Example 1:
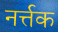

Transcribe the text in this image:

नर्त्तक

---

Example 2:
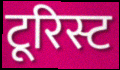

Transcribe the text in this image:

टूरिस्ट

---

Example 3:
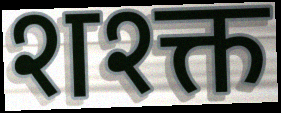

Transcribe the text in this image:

शश्क्त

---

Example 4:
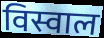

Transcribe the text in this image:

विस्वाल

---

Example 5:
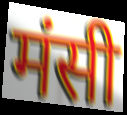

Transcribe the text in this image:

मंसी